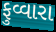
ફુવ્વારા